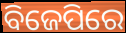
ବିଜେପିରେ